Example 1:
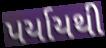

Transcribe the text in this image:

પર્યાયથી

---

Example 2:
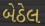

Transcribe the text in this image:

બેઠેલ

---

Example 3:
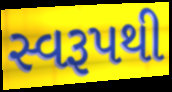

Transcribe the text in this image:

સ્વરૂપથી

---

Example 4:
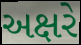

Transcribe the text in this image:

અક્ષરે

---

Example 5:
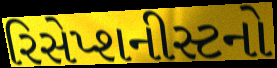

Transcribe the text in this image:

રિસેપ્શનીસ્ટનો